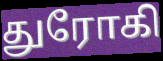
துரோகி